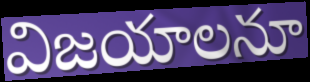
విజయాలనూ